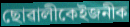
ছোৱালীকেইজনীক